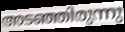
അടഞ്ഞിരുന്നു